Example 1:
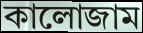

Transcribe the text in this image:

কালোজাম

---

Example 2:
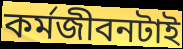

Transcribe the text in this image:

কর্মজীবনটাই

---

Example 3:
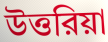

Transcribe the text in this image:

উত্তরিয়া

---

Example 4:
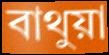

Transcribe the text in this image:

বাথুয়া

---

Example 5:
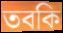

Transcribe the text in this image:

তবকি